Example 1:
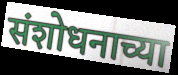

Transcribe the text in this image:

संशोधनाच्या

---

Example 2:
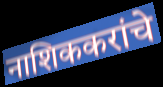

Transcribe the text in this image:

नाशिककरांचे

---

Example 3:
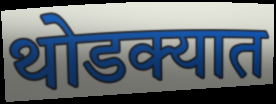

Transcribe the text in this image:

थोडक्‍यात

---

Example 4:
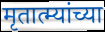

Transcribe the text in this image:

मृतात्म्यांच्या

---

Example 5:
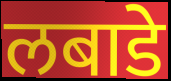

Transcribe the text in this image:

लबाडे